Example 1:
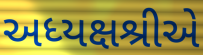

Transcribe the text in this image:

અધ્યક્ષશ્રીએ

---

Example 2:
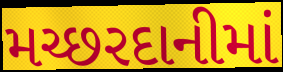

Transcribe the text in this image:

મચ્છરદાનીમાં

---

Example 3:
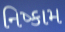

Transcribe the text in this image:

નિષ્કામ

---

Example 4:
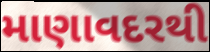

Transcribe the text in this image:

માણાવદરથી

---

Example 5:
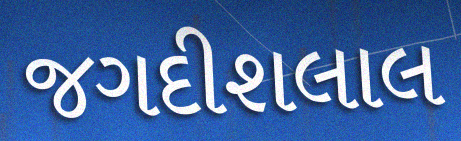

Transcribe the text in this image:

જગદીશલાલ